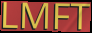
LMFT